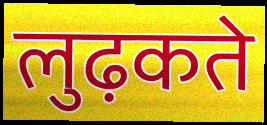
लुढ़कते